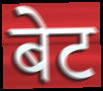
बेट